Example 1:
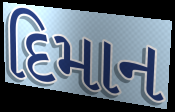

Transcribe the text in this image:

દિમાન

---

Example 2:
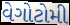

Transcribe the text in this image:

વેગોટોમી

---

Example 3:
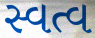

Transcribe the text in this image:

સ્વત્વ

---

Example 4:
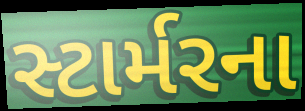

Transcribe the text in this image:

સ્ટાર્મરના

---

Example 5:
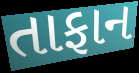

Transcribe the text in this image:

તાફાન